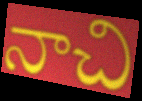
నాచి